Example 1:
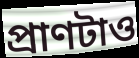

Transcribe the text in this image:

প্রাণটাও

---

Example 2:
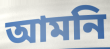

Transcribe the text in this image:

আমনি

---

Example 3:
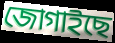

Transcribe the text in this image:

জোগাইছে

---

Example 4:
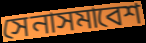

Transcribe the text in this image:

সেনাসমাবেশ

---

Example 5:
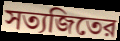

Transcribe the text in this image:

সত্যজিতের